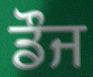
ਡੌਜ